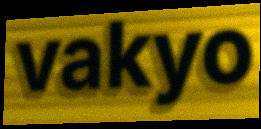
vakyo